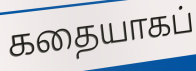
கதையாகப்